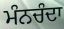
ਮੰਨਚੰਦਾ